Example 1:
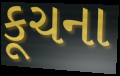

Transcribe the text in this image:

કૂચના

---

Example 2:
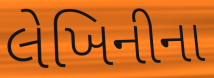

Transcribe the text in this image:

લેખિનીના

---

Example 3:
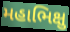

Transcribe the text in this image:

મહાભિક્ષુ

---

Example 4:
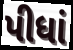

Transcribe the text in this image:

પીધાં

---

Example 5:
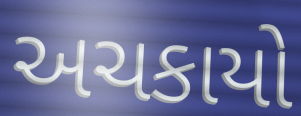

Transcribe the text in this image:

અચકાયો